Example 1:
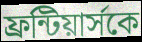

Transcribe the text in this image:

ফ্রন্টিয়ার্সকে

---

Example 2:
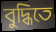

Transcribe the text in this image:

বুদ্ধিতে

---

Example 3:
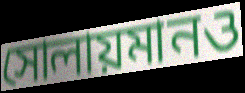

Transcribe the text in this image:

সোলায়মানও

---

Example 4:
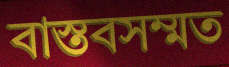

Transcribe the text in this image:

বাস্তবসম্মত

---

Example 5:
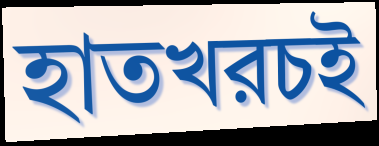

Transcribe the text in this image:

হাতখরচই